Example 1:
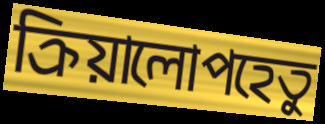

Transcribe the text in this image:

ক্রিয়ালোপহেতু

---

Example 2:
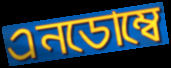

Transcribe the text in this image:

এনডোম্বে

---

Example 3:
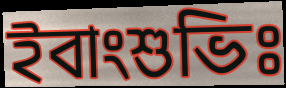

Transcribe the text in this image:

ইবাংশুভিঃ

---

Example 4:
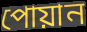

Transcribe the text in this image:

পোয়ান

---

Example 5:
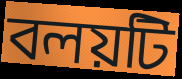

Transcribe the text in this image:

বলয়টি